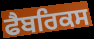
ਫੈਬਰਿਕਸ